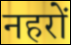
नहरों